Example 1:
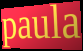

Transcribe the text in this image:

paula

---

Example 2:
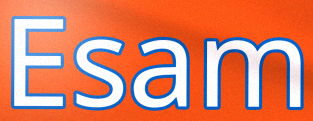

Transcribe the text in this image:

Esam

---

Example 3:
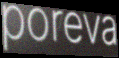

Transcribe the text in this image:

poreva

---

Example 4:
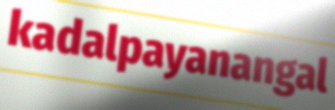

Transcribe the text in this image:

kadalpayanangal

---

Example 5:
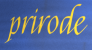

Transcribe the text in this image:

prirode